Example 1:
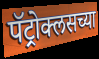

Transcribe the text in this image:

पॅट्रोक्लसच्या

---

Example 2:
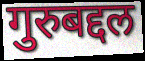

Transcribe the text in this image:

गुरुबद्दल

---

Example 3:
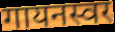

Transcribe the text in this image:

गायनस्वर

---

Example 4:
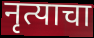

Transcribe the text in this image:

नृत्याचा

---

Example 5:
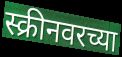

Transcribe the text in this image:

स्क्रीनवरच्या